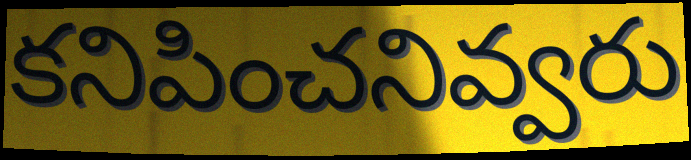
కనిపించనివ్వరు